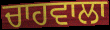
ਚਾਹਵਾਲਾ